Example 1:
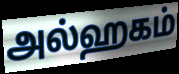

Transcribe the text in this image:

அல்ஹகம்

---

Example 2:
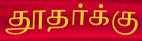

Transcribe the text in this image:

தூதர்க்கு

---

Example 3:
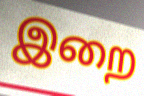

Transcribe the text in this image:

இறை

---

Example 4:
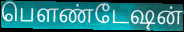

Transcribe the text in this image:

பௌண்டேஷன்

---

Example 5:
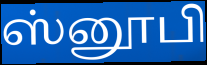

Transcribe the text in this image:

ஸ்னூபி